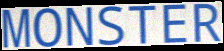
MONSTER